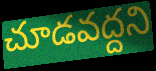
చూడవద్దని